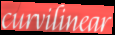
curvilinear